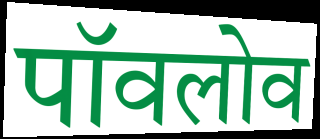
पॉवलोव